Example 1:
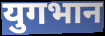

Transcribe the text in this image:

युगभान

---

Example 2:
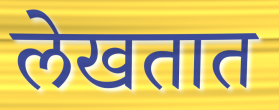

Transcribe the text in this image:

लेखतात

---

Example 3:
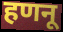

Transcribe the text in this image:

हणनू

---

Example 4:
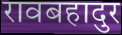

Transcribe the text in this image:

रावबहादुर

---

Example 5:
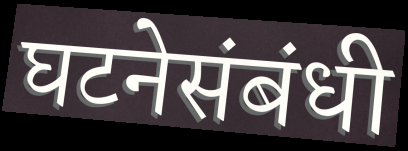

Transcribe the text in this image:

घटनेसंबंधी